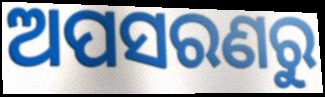
ଅପସରଣରୁ